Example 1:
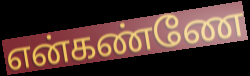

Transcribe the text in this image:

என்கண்ணே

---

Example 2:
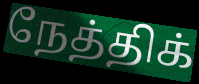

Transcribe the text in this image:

நேத்திக்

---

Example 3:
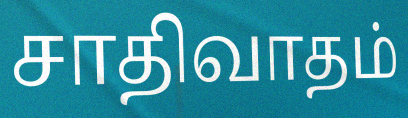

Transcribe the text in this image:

சாதிவாதம்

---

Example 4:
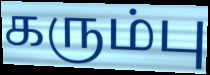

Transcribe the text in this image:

கரும்பு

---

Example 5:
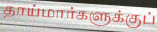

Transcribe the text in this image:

தாய்மார்களுக்குப்